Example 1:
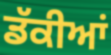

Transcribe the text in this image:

ਡੱਕੀਆਂ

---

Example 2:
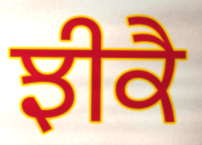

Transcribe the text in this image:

ਝੀਕੈ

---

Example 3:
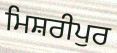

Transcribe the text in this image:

ਮਿਸ਼ਰੀਪੁਰ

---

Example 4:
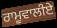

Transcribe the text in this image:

ਰਾਮੂਵਾਲੀਏ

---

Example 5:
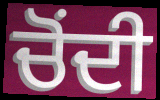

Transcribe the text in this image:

ਚੋੰਦੀ